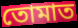
তোমাত